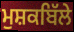
ਮੁਸ਼ਕਬਿੱਲੇ